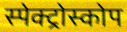
स्पेक्ट्रोस्कोप